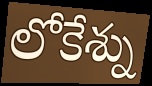
లోకేశ్ను